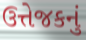
ઉત્તેજકનું